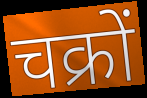
चक्रों